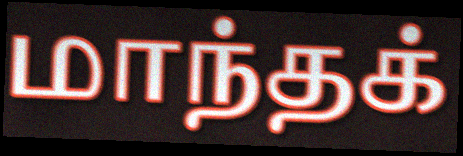
மாந்தக்